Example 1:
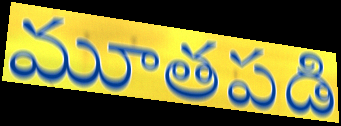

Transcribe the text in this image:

మూతపడి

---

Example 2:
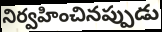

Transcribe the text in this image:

నిర్వహించినప్పుడు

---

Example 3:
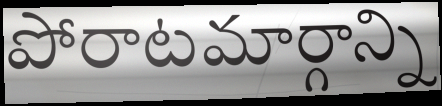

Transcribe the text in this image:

పోరాటమార్గాన్ని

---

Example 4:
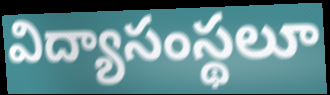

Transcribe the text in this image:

విద్యాసంస్థలూ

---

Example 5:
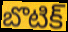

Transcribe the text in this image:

బొటిక్